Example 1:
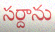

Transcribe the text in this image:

సర్దాను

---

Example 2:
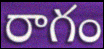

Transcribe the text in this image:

రాగం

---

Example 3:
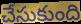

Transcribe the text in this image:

చేసుకుంది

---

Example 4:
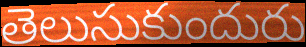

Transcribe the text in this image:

తెలుసుకుందురు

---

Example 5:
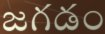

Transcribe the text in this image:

జగడం